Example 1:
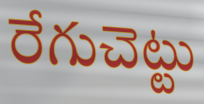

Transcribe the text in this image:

రేగుచెట్టు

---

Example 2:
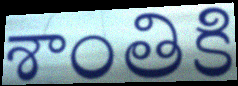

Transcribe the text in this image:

శాంతికి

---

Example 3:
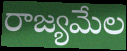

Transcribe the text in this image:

రాజ్యమేల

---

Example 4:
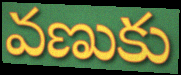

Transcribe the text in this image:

వణుకు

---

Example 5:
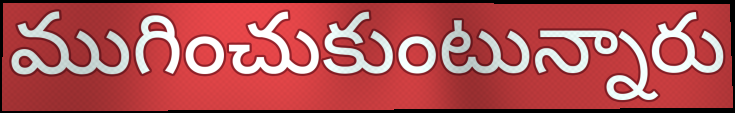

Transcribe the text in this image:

ముగించుకుంటున్నారు